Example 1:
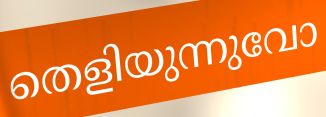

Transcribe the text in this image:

തെളിയുന്നുവോ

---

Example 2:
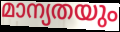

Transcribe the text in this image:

മാന്യതയും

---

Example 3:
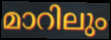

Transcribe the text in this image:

മാറിലും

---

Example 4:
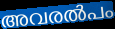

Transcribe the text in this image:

അവരൽപം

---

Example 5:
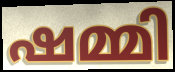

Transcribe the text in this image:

ഷമ്മി